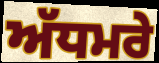
ਅੱਧਮਰੇ